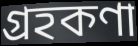
গ্রহকণা